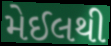
મેઈલથી